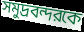
সমুদ্রবন্দরকে